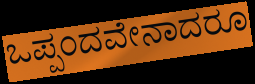
ಒಪ್ಪಂದವೇನಾದರೂ